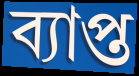
ব্যাপ্ত